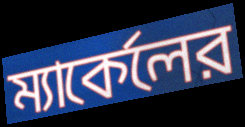
ম্যার্কেলের